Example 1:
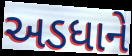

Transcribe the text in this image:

અડધાને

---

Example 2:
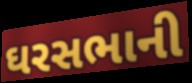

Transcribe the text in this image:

ઘરસભાની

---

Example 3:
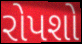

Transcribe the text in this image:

રોપશો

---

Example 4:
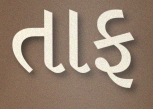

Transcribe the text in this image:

તાફ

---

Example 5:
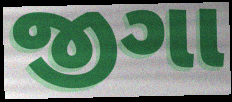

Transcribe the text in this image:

જીગા